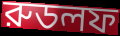
রুডলফ